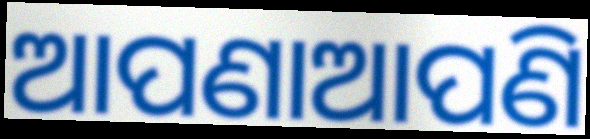
ଆପଣାଆପଣି